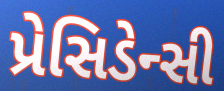
પ્રેસિડેન્સી